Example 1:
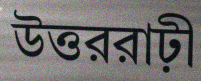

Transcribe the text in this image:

উত্তররাঢ়ী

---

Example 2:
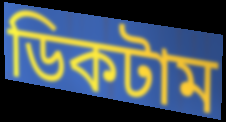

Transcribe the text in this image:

ডিকটাম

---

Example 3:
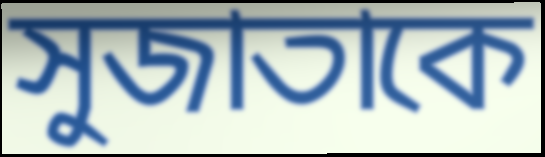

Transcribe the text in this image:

সুজাতাকে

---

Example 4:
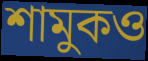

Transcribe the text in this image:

শামুকও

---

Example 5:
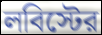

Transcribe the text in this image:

লবিস্টের